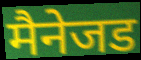
मैनेजड